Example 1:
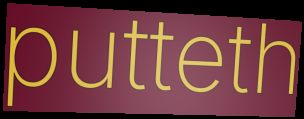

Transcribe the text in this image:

putteth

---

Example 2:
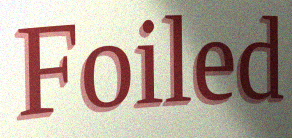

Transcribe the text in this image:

Foiled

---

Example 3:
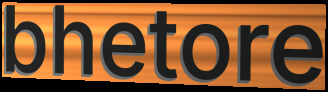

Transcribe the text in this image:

bhetore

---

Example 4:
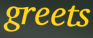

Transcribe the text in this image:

greets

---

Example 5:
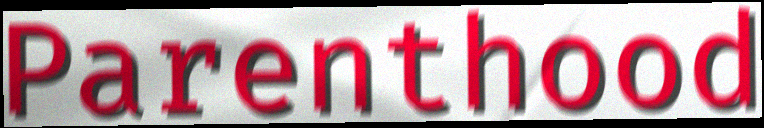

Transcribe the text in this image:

Parenthood